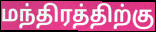
மந்திரத்திற்கு